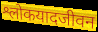
श्लोकयादजीवन